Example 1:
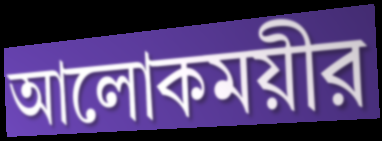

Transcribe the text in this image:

আলোকময়ীর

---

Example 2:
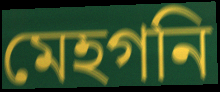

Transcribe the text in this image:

মেহগনি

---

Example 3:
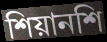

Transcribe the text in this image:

শিয়ানশি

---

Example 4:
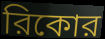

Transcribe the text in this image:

রিকোর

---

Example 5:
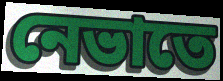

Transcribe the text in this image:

নেভাতে